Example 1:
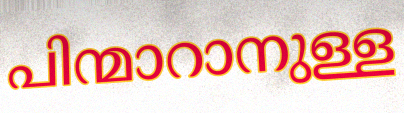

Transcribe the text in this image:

പിന്മാറാനുള്ള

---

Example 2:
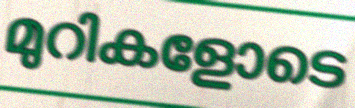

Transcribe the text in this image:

മുറികളോടെ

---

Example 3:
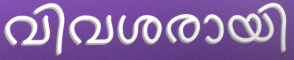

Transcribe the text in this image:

വിവശരായി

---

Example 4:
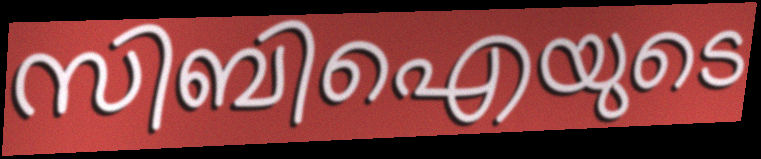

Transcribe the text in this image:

സിബിഐയുടെ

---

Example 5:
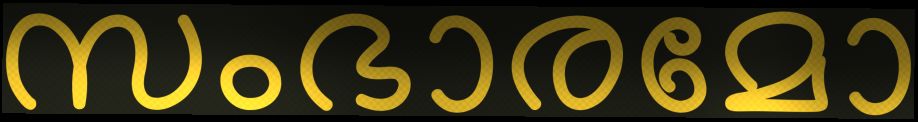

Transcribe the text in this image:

സംഭാരമോ